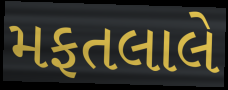
મફતલાલે